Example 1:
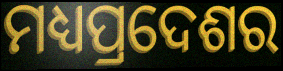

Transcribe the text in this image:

ମଧ୍ଯପ୍ରଦେଶର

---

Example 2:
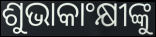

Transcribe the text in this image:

ଶୁଭାକାଂକ୍ଷୀଙ୍କୁ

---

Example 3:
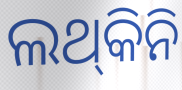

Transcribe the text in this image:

ଲଥ୍‍କିନି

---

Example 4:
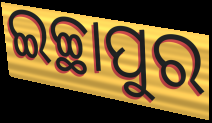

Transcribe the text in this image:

ଇଚ୍ଛାପୁର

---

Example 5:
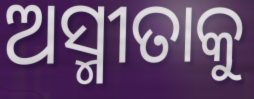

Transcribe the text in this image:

ଅସ୍ମୀତାକୁ